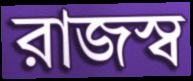
রাজস্ব